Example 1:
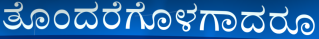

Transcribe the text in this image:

ತೊಂದರೆಗೊಳಗಾದರೂ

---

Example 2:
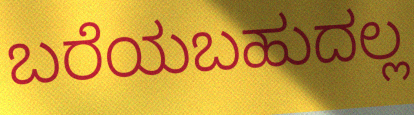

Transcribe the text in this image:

ಬರೆಯಬಹುದಲ್ಲ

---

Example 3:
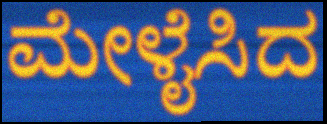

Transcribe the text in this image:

ಮೇಳೈಸಿದ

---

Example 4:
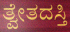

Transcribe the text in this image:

ತ್ವೇತದಸ್ತಿ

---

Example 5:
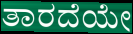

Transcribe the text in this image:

ತಾರದೆಯೇ